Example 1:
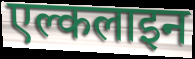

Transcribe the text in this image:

एल्कलाइन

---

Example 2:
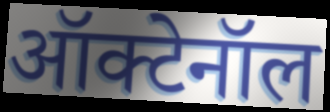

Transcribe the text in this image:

ऑक्टेनॉल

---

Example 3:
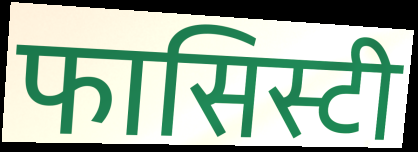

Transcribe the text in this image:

फासिस्टी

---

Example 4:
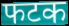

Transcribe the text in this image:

फटक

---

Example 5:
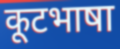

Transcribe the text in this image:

कूटभाषा